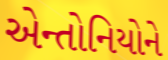
એન્તોનિયોને